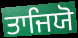
ਤਾਜਿਯੋ